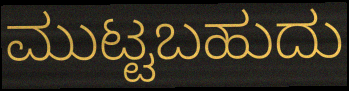
ಮುಟ್ಟಬಹುದು